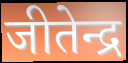
जीतेन्द्र